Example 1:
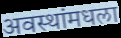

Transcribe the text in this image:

अवस्थांमधला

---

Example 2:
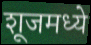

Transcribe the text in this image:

शूजमध्ये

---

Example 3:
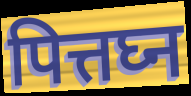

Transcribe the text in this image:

पित्तघ्न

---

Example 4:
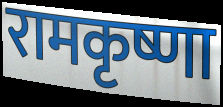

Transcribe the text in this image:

रामकृष्णा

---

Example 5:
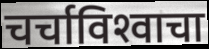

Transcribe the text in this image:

चर्चाविश्वाचा